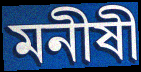
মনীষী